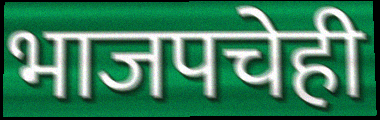
भाजपचेही